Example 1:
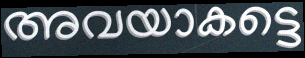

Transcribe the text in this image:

അവയാകട്ടെ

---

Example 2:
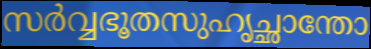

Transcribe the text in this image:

സർവ്വഭൂതസുഹൃച്ഛാന്തോ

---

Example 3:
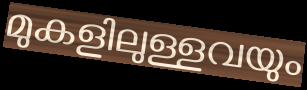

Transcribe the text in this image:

മുകളിലുള്ളവയും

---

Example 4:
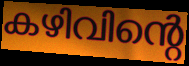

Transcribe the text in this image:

കഴിവിന്റെ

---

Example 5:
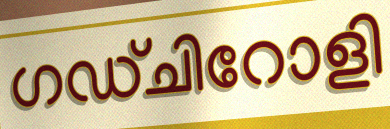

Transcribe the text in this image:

ഗഡ്ചിറോളി